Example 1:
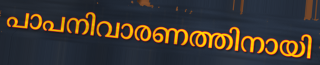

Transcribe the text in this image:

പാപനിവാരണത്തിനായി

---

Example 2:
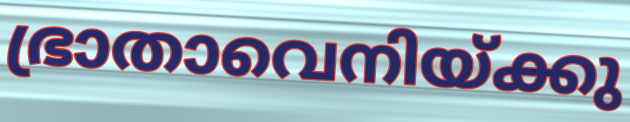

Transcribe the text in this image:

ഭ്രാതാവെനിയ്ക്കു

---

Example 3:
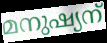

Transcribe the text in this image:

മനുഷ്യന്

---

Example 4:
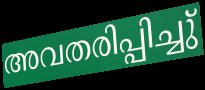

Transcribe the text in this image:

അവതരിപ്പിച്ചു്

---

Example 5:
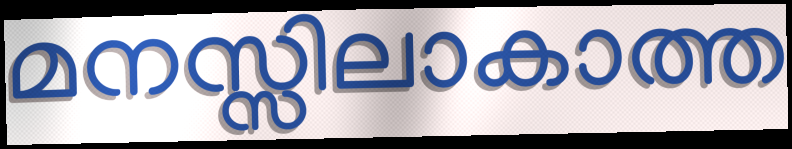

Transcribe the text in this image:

മനസ്സിലാകാത്ത